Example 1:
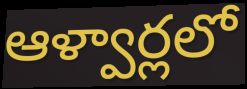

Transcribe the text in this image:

ఆళ్వార్లలో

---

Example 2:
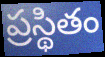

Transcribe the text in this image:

ప్రస్థితం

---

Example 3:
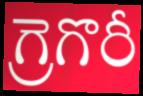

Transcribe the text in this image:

గ్రెగొరీ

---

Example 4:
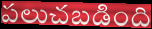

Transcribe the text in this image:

పలుచబడింది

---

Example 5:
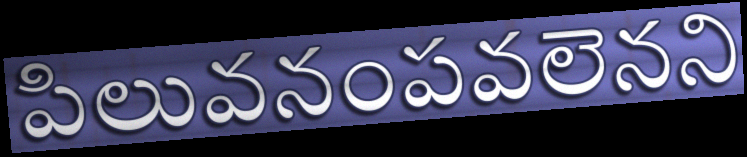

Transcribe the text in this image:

పిలువనంపవలెనని